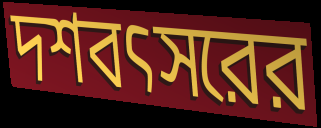
দশবৎসরের